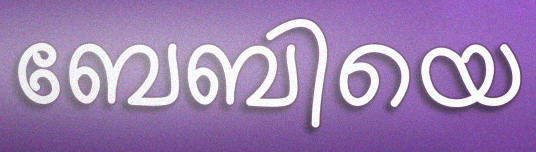
ബേബിയെ